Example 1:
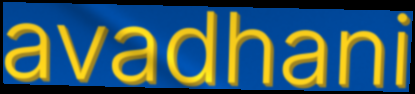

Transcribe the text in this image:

avadhani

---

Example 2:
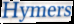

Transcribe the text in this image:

Hymers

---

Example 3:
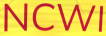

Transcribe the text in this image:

NCWI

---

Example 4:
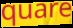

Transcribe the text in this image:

quare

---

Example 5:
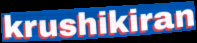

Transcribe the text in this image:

krushikiran